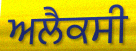
ਅਲੈਕਸੀ